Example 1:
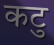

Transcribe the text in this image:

कटु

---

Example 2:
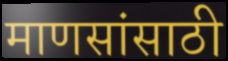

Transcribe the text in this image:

माणसांसाठी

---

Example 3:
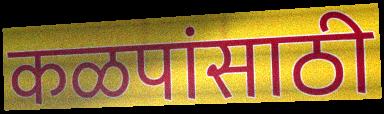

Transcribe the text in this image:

कळपांसाठी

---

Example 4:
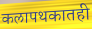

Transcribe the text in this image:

कलापथकातही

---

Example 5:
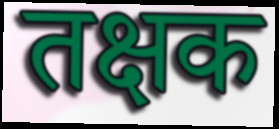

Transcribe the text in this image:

तक्षक